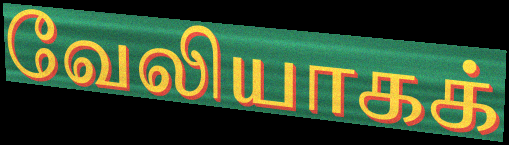
வேலியாகக்